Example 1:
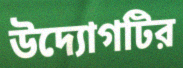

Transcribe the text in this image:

উদ্যোগটির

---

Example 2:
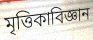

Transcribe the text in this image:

মৃত্তিকাবিজ্ঞান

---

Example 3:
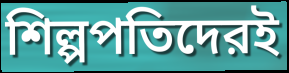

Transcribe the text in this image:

শিল্পপতিদেরই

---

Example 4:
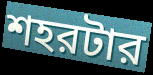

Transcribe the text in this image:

শহরটার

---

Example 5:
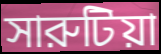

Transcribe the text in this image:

সারুটিয়া